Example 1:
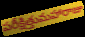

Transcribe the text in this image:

పరీక్షిత్తుమహారాజు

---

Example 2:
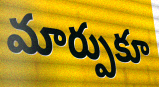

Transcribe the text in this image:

మార్పుకూ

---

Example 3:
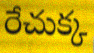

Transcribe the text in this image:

రేచుక్క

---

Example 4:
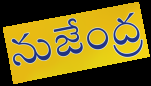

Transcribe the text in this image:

నుజేంద్ర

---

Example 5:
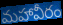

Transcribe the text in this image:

మహావీరం